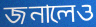
জনালেও